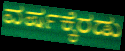
ವರ್ಷಕ್ಕೆರಡು